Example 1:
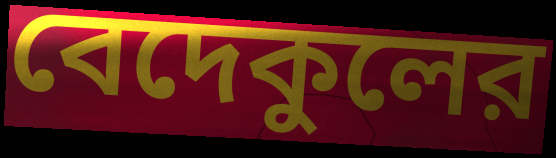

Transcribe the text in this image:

বেদেকুলের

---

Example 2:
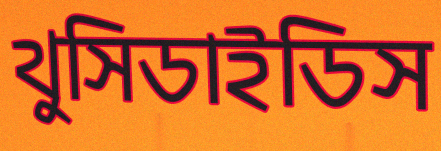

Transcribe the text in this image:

থুসিডাইডিস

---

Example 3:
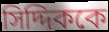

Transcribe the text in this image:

সিদ্দিককে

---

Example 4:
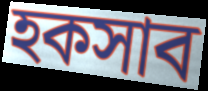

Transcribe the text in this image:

হকসাব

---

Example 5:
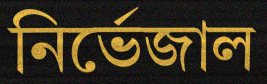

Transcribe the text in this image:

নির্ভেজাল